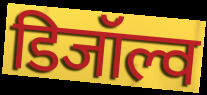
डिजॉल्व